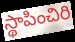
స్థాపించిరి